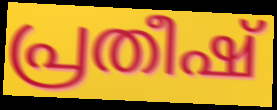
പ്രതീഷ്